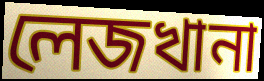
লেজখানা